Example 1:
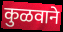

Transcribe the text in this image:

कुळवाने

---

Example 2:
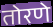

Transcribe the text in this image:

तोरणे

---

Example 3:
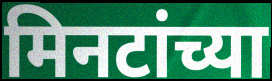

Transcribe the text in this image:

मिनटांच्या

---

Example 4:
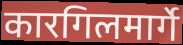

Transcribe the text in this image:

कारगिलमार्गे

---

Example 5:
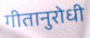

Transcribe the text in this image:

गीतानुरोधी